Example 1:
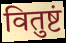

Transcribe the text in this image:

वितुष्टं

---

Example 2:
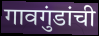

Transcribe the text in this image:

गावगुंडांची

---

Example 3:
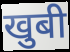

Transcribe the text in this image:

खुबी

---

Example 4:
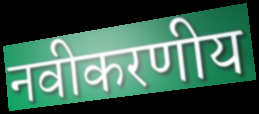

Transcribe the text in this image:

नवीकरणीय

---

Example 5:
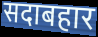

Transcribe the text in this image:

सदाबहार